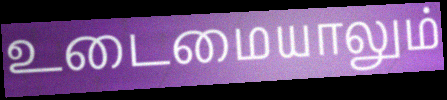
உடைமையாலும்